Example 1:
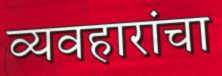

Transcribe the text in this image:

व्यवहारांचा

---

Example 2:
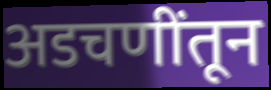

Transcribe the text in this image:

अडचणींतून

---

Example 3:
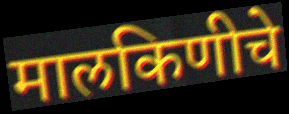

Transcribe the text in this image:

मालकिणीचे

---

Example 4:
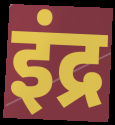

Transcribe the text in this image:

इंद्र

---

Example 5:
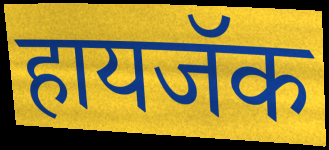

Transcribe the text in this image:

हायजॅक